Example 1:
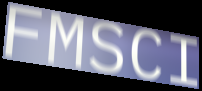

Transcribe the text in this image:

FMSCI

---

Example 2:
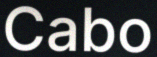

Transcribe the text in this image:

Cabo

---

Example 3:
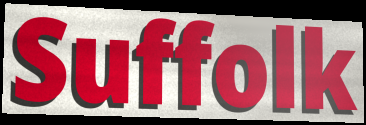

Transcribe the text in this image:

Suffolk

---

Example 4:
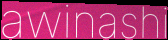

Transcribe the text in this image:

awinashi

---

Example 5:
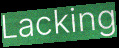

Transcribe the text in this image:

Lacking